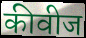
कीवीज